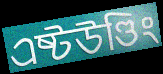
এষ্টউণ্ডিং